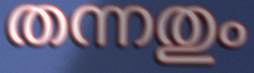
തന്നതും